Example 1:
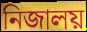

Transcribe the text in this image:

নিজালয়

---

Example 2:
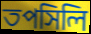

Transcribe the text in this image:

তপসিলি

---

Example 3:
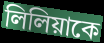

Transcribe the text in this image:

লিলিয়াকে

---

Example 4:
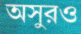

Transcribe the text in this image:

অসুরও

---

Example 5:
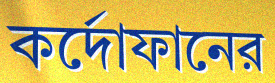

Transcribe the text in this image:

কর্দোফানের